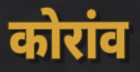
कोरांव